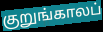
குறுங்காலப்